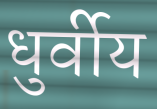
धुर्वीय